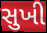
સુખી